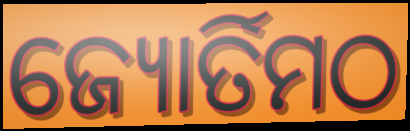
ଜ୍ୟୋର୍ତିମଠ